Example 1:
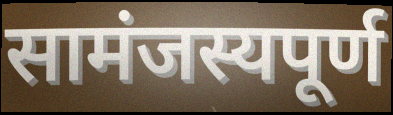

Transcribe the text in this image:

सामंजस्यपूर्ण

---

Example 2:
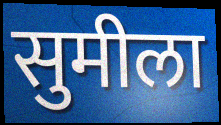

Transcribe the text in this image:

सुमीला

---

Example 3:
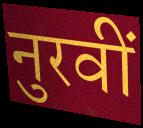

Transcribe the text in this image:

नुरवीं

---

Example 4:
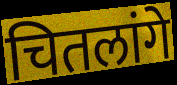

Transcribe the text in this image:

चितलांगे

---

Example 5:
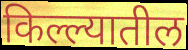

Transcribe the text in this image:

किल्ल्यातील